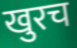
खुरच